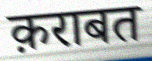
क़राबत